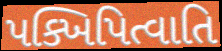
પક્ખિપિત્વાતિ